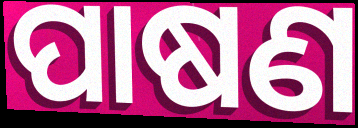
ପାଷଣ